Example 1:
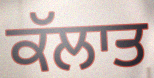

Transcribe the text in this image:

ਕੱਲਾਤ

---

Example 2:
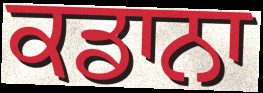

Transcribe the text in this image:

ਕਡਾਨਾ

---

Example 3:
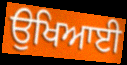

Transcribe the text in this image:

ਉਖਿਆਈ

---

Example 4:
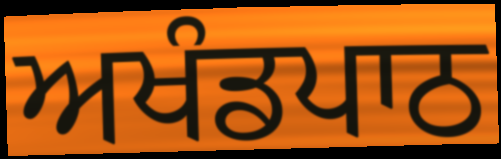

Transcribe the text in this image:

ਅਖੰਡਪਾਠ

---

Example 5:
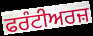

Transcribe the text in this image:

ਫਰੰਟੀਅਰਜ਼